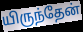
யிருந்தேன்